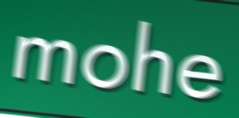
mohe